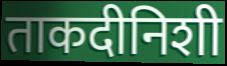
ताकदीनिशी